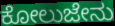
ಕೋಲುಜೇನು